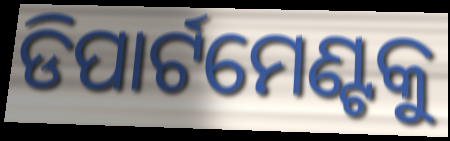
ଡିପାର୍ଟମେଣ୍ଟକୁ